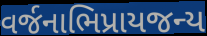
વર્જનાભિપ્રાયજન્ય